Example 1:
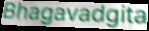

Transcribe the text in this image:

Bhagavadgita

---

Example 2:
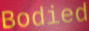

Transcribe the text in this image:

Bodied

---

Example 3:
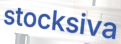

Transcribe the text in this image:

stocksiva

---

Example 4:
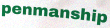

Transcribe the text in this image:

penmanship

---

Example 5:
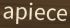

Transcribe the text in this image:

apiece